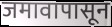
जमावापासून